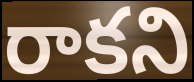
రాకని